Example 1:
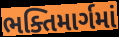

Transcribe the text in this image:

ભક્તિમાર્ગમાં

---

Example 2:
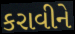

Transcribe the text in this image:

કરાવીને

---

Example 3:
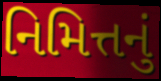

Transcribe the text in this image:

નિમિત્તનું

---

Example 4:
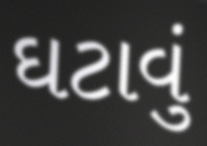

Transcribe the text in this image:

ઘટાવું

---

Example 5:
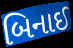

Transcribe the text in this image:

બિનાઈ